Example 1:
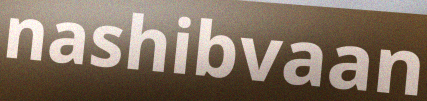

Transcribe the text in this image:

nashibvaan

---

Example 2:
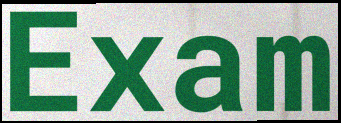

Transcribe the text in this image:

Exam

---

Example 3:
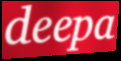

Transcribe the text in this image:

deepa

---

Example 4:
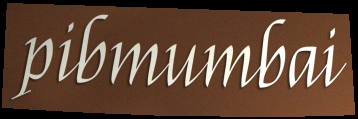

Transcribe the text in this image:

pibmumbai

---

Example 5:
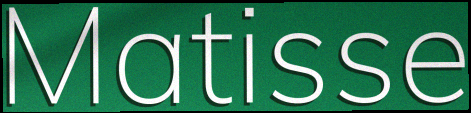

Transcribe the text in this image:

Matisse